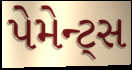
પેમેન્ટ્સ